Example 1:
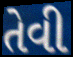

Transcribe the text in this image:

તેવી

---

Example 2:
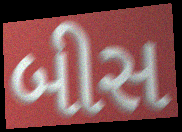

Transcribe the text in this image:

બીસ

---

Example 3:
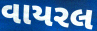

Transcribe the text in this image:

વાયરલ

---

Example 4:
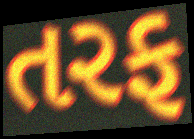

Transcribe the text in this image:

તરફ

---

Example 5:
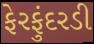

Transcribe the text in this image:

ફેરફુંદરડી